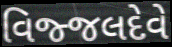
વિજ્જલદેવે